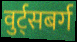
वुर्ट्सबर्ग